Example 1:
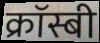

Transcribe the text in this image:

क्रॉस्बी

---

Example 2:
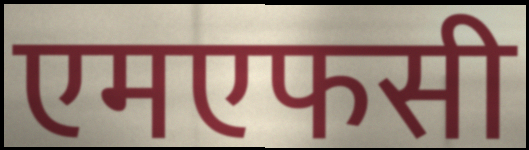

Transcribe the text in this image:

एमएफसी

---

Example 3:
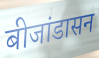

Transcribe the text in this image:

बीजांडासन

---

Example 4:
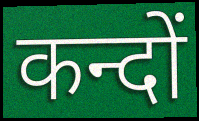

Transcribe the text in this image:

कन्दों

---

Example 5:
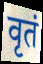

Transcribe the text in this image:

वृतं